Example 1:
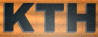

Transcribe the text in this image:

KTH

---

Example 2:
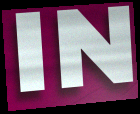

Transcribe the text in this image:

IN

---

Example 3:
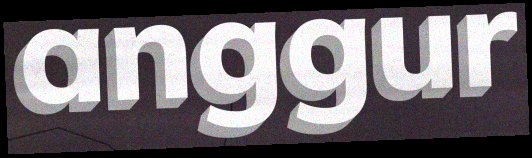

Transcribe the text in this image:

anggur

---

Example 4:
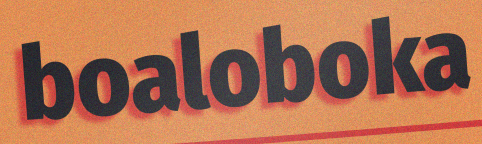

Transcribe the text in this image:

boaloboka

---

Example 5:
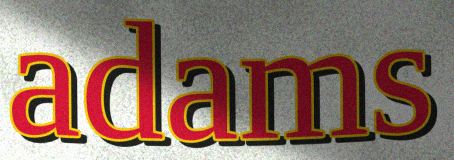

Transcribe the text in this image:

adams